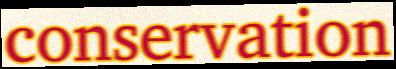
conservation